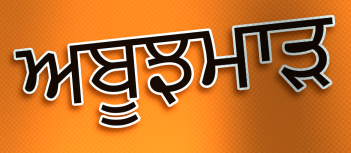
ਅਬੂਝਮਾੜ